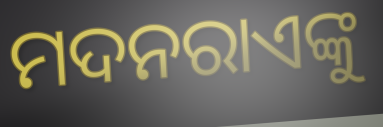
ମଦନରାଏଙ୍କୁ